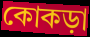
কোকড়া